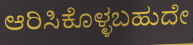
ಆರಿಸಿಕೊಳ್ಳಬಹುದೇ